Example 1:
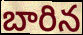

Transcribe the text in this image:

బారిన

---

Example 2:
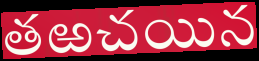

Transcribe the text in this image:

తఱచయిన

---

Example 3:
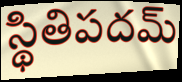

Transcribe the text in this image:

స్థితిపదమ్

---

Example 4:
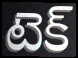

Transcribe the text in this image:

టెక్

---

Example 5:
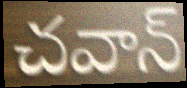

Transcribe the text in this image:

చవాన్